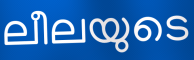
ലീലയുടെ